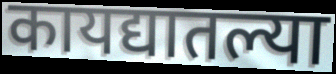
कायद्यातल्या